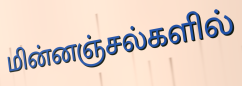
மின்னஞ்சல்களில்